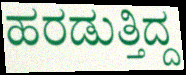
ಹರಡುತ್ತಿದ್ದ